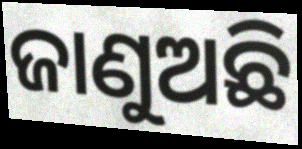
ଜାଣୁଅଛି